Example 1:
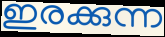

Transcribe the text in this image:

ഇരക്കുന്ന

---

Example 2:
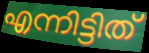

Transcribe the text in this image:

എന്നിട്ടിത്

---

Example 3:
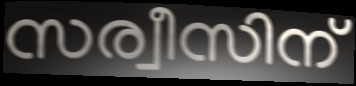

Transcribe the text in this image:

സര്വീസിന്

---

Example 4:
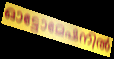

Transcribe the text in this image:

ഓട്ടോമേഷനിൽ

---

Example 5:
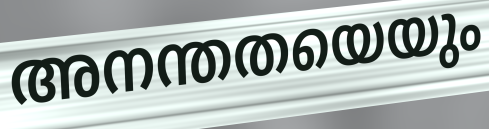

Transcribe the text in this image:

അനന്തതയെയും